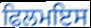
ਫਿਲਮਇਸ